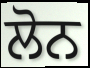
ਲੋਨ